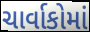
ચાર્વાકોમાં